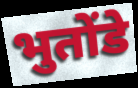
भुतोंडे